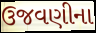
ઉજવણીના